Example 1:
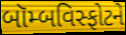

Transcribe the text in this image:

બૉમ્બવિસ્ફોટને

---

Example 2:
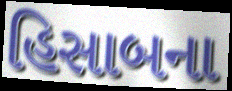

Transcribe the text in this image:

હિસાબના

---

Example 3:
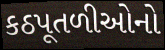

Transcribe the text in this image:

કઠપૂતળીઓનો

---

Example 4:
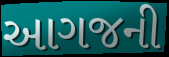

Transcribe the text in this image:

આગજની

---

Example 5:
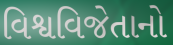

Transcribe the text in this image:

વિશ્વવિજેતાનો